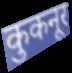
कुकनूर